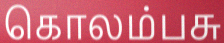
கொலம்பசு